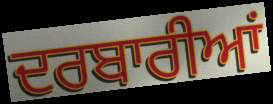
ਦਰਬਾਰੀਆਂ